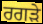
ਰਗੜੇ